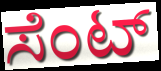
ಸೆಂಟ್